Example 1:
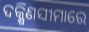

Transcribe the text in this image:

ଦକ୍ଷିଣସୀମାରେ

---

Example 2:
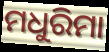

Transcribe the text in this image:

ମଧୁରିମା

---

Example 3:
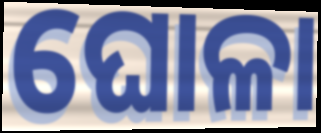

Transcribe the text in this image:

ଘୋଳା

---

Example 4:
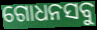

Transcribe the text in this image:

ଗୋଧନସବୁ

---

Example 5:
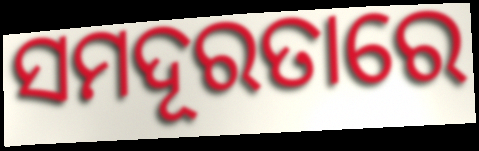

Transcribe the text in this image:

ସମଦୂରତାରେ